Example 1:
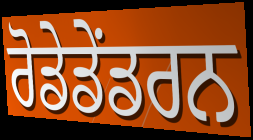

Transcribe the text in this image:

ਰੋਡੇਡੇਂਡਰਨ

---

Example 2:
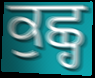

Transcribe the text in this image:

ਕੁਛ੍ਹ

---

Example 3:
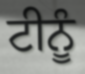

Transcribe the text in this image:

ਟੀਨੂੰ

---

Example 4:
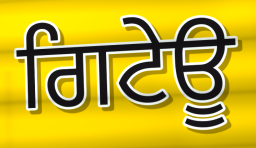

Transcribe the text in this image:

ਗਿਟੇਊ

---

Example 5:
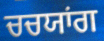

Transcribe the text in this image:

ਚਚਯਾਂਗ